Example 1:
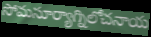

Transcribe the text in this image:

సోమసూర్యాగ్నిలోచనాయ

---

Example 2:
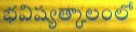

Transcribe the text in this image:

భవిష్యత్కాలంలో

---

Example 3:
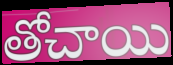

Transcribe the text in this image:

తోచాయి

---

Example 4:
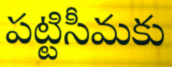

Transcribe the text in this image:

పట్టిసీమకు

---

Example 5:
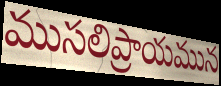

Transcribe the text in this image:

ముసలిప్రాయమున